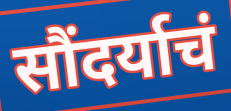
सौंदर्याचं